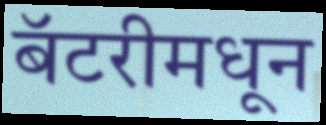
बॅटरीमधून